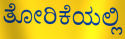
ತೋರಿಕೆಯಲ್ಲಿ